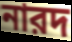
নারদ